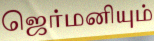
ஜெர்மனியும்